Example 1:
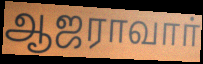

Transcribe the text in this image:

ஆஜராவார்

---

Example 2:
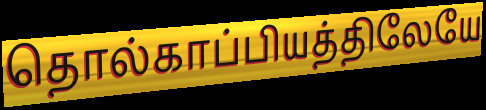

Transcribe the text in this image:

தொல்காப்பியத்திலேயே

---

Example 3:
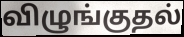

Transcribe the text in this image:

விழுங்குதல்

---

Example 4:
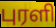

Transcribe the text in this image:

புரளி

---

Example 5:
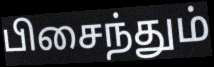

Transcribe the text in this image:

பிசைந்தும்